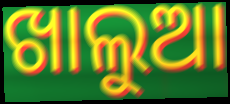
ଖାଲୁଆ